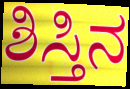
ಶಿಸ್ತಿನ